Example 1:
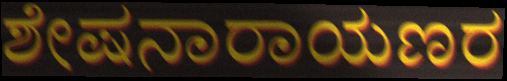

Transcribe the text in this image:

ಶೇಷನಾರಾಯಣರ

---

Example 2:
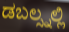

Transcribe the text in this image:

ಡಬಲ್ಸ್ನಲ್ಲಿ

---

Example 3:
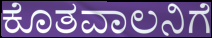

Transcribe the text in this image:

ಕೊತವಾಲನಿಗೆ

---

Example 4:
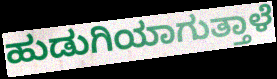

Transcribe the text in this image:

ಹುಡುಗಿಯಾಗುತ್ತಾಳೆ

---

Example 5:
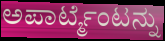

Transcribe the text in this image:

ಅಪಾರ್ಟ್ಮೆಂಟನ್ನು